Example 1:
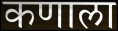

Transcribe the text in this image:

कणाला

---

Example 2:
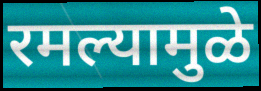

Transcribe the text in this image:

रमल्यामुळे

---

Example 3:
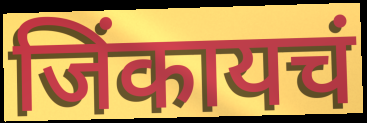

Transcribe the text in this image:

जिंकायचं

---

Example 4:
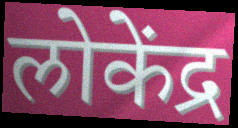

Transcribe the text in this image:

लोकेंद्र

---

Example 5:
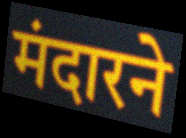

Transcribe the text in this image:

मंदारने